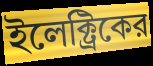
ইলেক্ট্রিকের